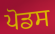
ਪੋਡਸ